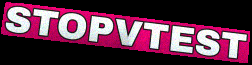
STOPVTEST